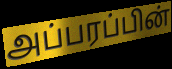
அப்பரப்பின்